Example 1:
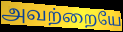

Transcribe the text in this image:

அவற்றையே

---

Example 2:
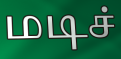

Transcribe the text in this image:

மடிச்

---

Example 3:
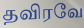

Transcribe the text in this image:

தவிரவே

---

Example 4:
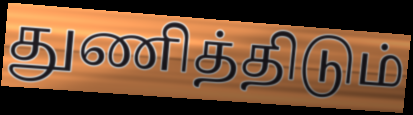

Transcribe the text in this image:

துணித்திடும்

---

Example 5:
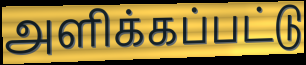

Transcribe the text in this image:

அளிக்கப்பட்டு